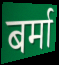
बर्मा